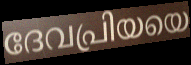
ദേവപ്രിയയെ